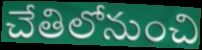
చేతిలోనుంచి